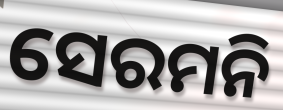
ସେରମନି